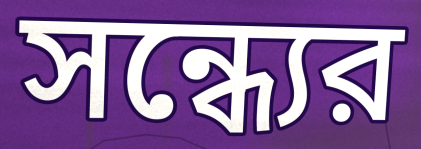
সন্ধ্যের